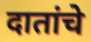
दातांचे